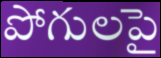
పోగులపై